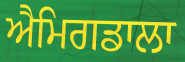
ਐਮਿਗਡਾਲਾ